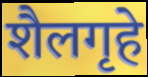
शैलगृहे